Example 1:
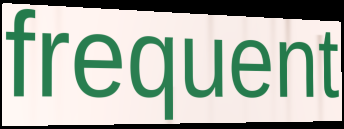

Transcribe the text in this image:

frequent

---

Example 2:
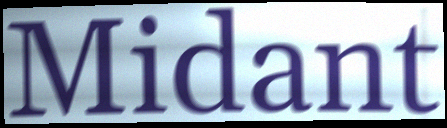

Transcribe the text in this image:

Midant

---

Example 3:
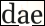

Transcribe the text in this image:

dae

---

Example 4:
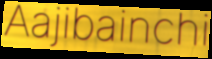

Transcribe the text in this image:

Aajibainchi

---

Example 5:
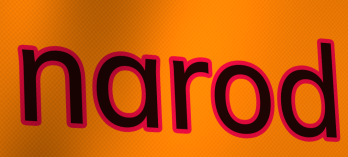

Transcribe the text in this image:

narod